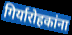
गिर्यारोहकांना